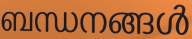
ബന്ധനങ്ങൾ